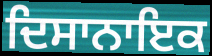
ਦਿਸਾਨਾਇਕ